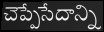
చెప్పేసేదాన్ని